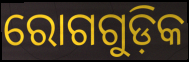
ରୋଗଗୁଡ଼ିକ